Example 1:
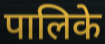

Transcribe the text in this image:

पालिके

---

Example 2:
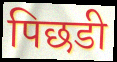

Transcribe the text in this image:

पिछडी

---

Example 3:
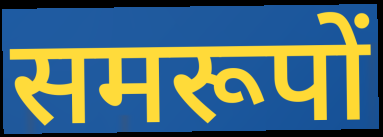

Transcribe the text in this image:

समरूपों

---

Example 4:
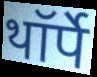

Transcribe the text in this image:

थॉर्पे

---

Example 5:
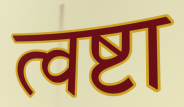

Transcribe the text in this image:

त्वष्टा